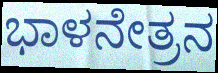
ಭಾಳನೇತ್ರನ